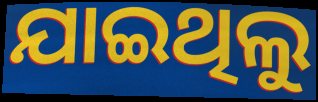
ଯାଇଥିଲୁ